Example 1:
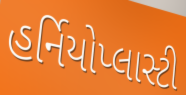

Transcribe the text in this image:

હર્નિયોપ્લાસ્ટી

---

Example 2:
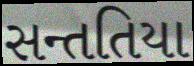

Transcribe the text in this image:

સન્તતિયા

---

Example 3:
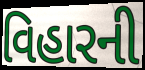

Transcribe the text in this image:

વિહારની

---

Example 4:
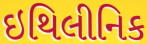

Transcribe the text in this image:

ઇથિલીનિક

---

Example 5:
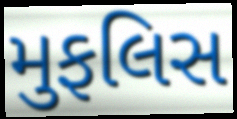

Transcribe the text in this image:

મુફલિસ